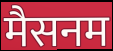
मैसनम